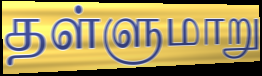
தள்ளுமாறு